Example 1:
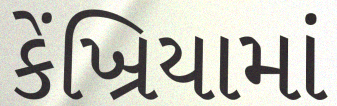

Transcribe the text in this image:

કેંખ્રિયામાં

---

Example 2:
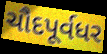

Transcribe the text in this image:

ચૌદપૂર્વધર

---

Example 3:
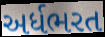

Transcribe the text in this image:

અર્ધભરત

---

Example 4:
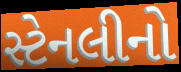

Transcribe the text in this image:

સ્ટેનલીનો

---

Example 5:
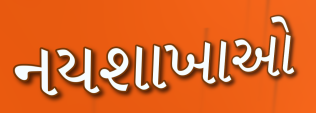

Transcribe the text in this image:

નયશાખાઓ